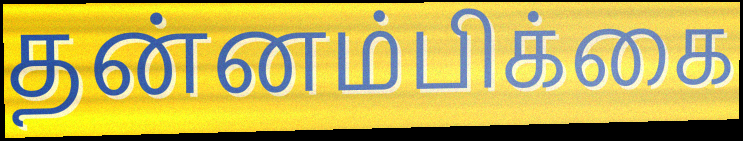
தன்னம்பிக்கை